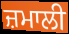
ਜ਼ਮਾਲੀ